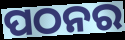
ପଠନର